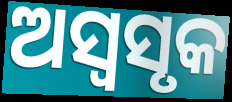
ଅସ୍ୱସୃକ